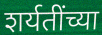
शर्यतींच्या